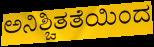
ಅನಿಶ್ಚಿತತೆಯಿಂದ